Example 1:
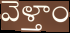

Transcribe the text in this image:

వెళ్తాం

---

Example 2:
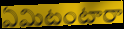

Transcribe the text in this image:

ఏమిటంటారా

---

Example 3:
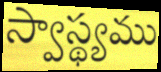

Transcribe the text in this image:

స్వాస్థ్యము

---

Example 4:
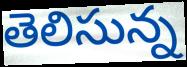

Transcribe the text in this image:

తెలిసున్న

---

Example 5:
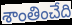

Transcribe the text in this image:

శాంతించేది